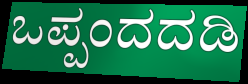
ಒಪ್ಪಂದದಡಿ